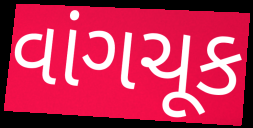
વાંગચૂક